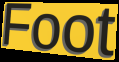
Foot